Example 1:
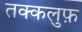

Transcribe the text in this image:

तक्कलुफ़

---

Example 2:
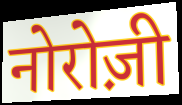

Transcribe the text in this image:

नोरोज़ी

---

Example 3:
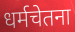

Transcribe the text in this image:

धर्मचेतना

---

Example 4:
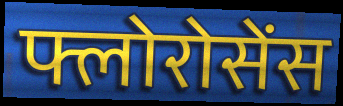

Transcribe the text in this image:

फ्लोरोसेंस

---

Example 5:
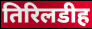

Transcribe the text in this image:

तिरिलडीह